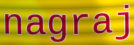
nagraj